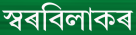
স্বৰবিলাকৰ